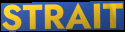
STRAIT